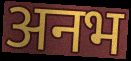
अनभ